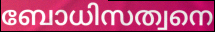
ബോധിസത്വനെ